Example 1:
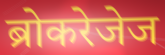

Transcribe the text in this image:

ब्रोकरेजेज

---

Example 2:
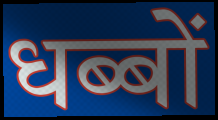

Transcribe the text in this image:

धब्बों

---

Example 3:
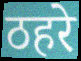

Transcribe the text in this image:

ठहरे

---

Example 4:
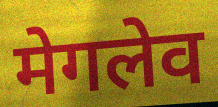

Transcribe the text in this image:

मेगलेव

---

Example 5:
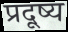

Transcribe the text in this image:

प्रदूष्य